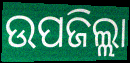
ଉପଜିଲ୍ଲା